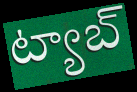
ట్యాబ్